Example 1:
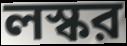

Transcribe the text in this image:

লস্কর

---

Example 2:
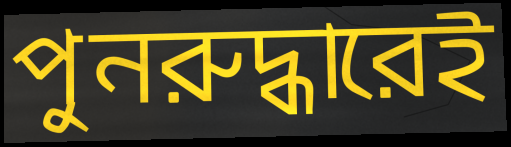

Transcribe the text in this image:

পুনরুদ্ধারেই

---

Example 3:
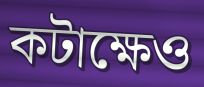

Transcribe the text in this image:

কটাক্ষেও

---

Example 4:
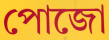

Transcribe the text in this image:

পোজো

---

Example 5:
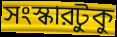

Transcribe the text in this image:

সংস্কারটুকু